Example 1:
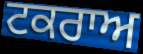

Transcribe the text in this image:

ਟਕਰਾਅ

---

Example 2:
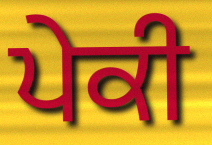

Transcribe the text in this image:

ਪੇਕੀ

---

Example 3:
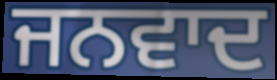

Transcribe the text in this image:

ਜਨਵਾਦ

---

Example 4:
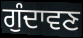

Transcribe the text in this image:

ਗੁੰਦਾਵਣ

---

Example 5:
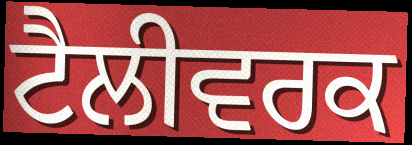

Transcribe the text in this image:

ਟੈਲੀਵਰਕ